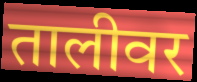
तालीवर